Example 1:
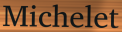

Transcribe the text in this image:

Michelet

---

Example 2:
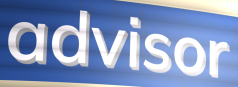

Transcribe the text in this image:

advisor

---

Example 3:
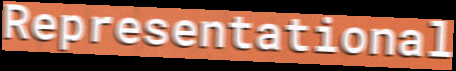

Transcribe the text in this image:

Representational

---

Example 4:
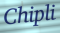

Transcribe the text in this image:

Chipli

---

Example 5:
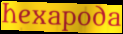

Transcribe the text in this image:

hexapoda